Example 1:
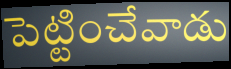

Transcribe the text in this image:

పెట్టించేవాడు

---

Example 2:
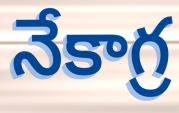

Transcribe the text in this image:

నేకాగ్ర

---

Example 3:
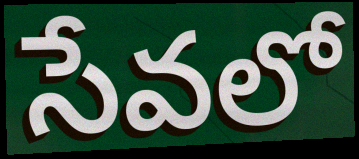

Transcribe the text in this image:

సేవలో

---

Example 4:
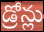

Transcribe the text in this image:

డ్రోన్లు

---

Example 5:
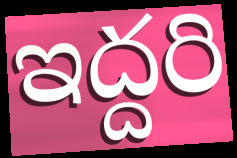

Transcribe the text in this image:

ఇద్దరి